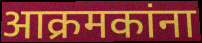
आक्रमकांना